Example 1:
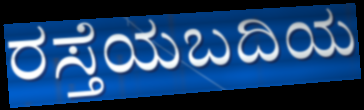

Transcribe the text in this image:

ರಸ್ತೆಯಬದಿಯ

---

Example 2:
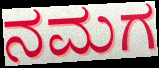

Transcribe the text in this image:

ನಮಗ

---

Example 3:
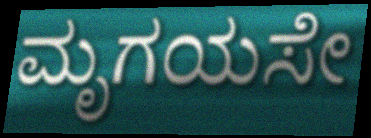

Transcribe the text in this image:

ಮೃಗಯಸೇ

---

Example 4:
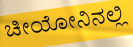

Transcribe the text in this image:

ಚೀಯೋನಿನಲ್ಲಿ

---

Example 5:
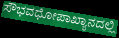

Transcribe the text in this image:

ಸೌಭವಧೋಪಾಖ್ಯಾನದಲ್ಲಿ